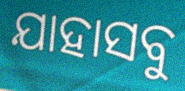
ଯାହାସବୁ